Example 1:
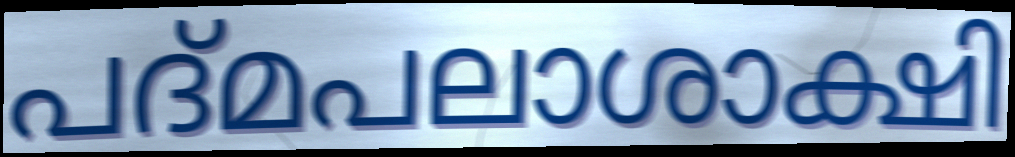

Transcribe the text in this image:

പദ്മപലാശാക്ഷി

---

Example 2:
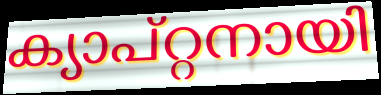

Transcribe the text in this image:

ക്യാപ്റ്റനായി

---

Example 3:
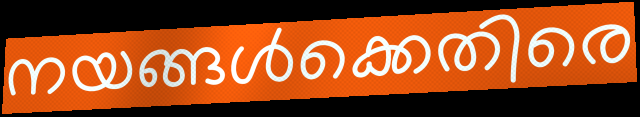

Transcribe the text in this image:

നയങ്ങൾക്കെതിരെ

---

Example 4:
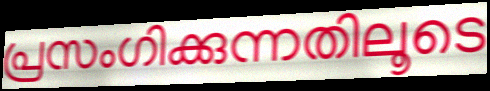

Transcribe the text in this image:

പ്രസംഗിക്കുന്നതിലൂടെ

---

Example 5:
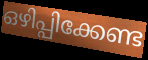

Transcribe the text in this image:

ഒഴിപ്പിക്കേണ്ട